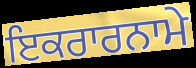
ਇਕਰਾਰਨਾਮੇ